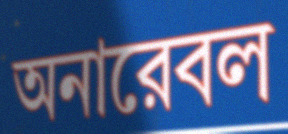
অনারেবল